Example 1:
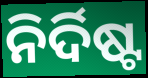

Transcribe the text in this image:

ନିର୍ଦିଷ୍ଟ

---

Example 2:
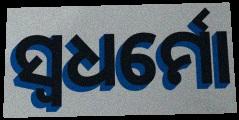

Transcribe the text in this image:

ସ୍ୱଧର୍ମୋ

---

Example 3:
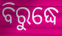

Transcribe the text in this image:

ବିରୁଦ୍ଧେ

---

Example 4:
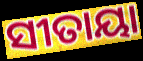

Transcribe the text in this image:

ସୀତାୟା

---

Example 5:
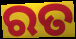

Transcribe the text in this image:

ରତ